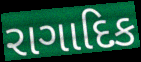
રાગાદિક